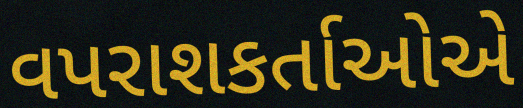
વપરાશકર્તાઓએ